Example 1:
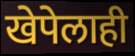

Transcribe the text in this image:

खेपेलाही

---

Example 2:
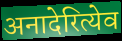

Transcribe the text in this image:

अनादेरित्येव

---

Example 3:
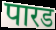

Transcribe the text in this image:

पारड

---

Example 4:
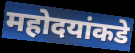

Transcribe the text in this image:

महोदयांकडे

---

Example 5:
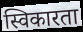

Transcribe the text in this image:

स्विकारता